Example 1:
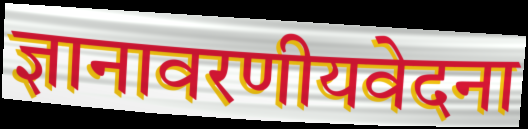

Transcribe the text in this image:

ज्ञानावरणीयवेदना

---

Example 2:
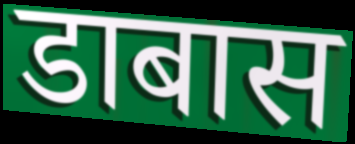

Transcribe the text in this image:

डाबास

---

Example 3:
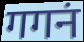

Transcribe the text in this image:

गगनं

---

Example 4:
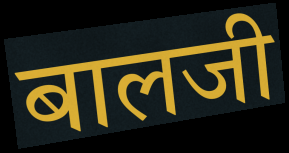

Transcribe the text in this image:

बालजी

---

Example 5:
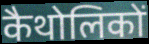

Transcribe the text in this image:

कैथोलिकों